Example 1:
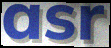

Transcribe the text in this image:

asr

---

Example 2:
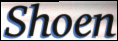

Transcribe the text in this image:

Shoen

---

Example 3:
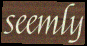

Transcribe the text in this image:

seemly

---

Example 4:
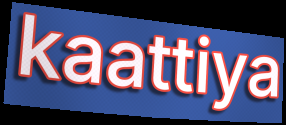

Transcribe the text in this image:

kaattiya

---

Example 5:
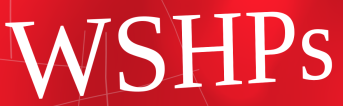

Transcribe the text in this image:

WSHPs